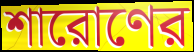
শারোণের